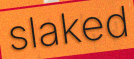
slaked